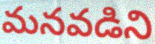
మనవడిని